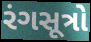
રંગસૂત્રો